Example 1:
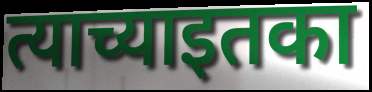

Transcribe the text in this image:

त्याच्याइतका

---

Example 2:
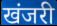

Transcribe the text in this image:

खंजरी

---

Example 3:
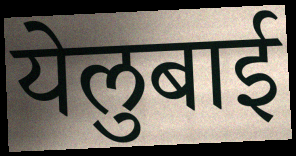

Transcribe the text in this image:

येलुबाई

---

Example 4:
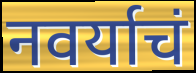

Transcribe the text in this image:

नवर्याचं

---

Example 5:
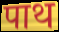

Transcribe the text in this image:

पाथ